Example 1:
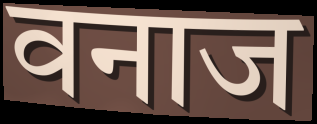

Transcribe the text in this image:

वनाज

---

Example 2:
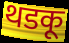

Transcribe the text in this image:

थडकू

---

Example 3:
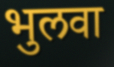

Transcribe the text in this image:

भुलवा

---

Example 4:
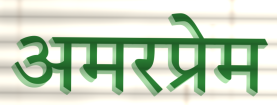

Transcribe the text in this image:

अमरप्रेम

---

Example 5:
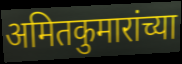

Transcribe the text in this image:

अमितकुमारांच्या